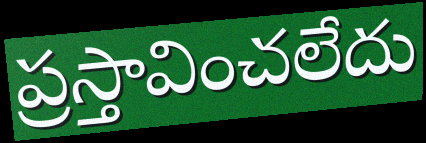
ప్రస్తావించలేదు